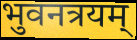
भुवनत्रयम्